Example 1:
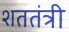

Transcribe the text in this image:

शततंत्री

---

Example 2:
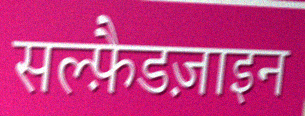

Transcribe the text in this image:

सल्फ़ैडज़ाइन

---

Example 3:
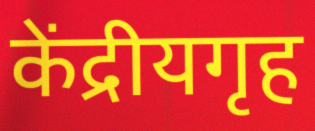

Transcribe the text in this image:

केंद्रीयगृह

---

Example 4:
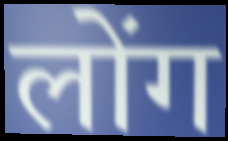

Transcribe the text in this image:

लोंग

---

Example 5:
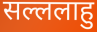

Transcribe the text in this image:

सल्ललाहु